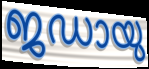
ജഡായു